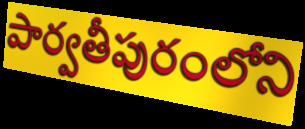
పార్వతీపురంలోని